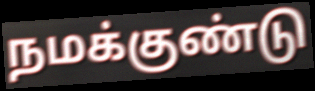
நமக்குண்டு